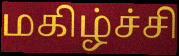
மகிழ்ச்சி